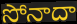
సోనాదా